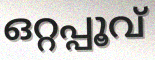
ഒറ്റപ്പൂവ്